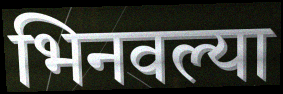
भिनवल्या